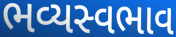
ભવ્યસ્વભાવ